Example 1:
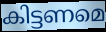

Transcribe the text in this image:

കിട്ടണമെ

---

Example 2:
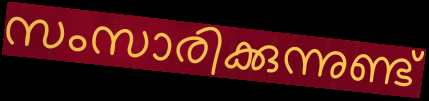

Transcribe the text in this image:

സംസാരിക്കുന്നുണ്ട്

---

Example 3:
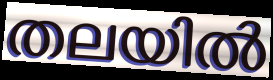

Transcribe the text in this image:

തലയിൽ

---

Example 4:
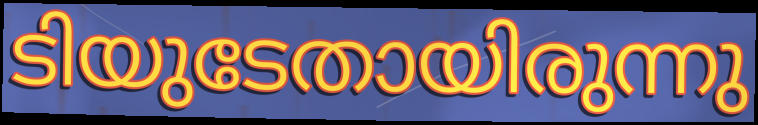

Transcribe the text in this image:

ടിയുടേതായിരുന്നു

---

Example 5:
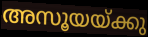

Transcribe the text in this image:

അസൂയയ്ക്കു